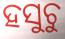
ହସୁଚୁ